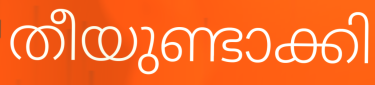
തീയുണ്ടാക്കി